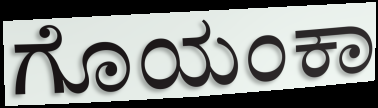
ಗೊಯಂಕಾ